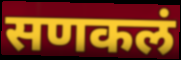
सणकलं